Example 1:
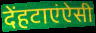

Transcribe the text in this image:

देंहटाएंऐसी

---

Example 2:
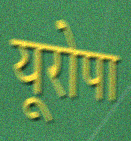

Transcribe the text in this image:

यूरोपा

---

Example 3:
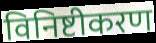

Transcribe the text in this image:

विनिष्टीकरण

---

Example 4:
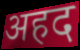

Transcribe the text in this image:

अहद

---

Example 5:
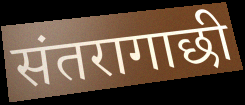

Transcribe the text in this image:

संतरागाछी